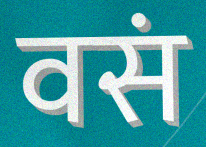
वसं